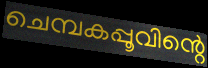
ചെമ്പകപ്പൂവിന്റെ